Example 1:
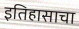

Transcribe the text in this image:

इतिहासाचा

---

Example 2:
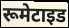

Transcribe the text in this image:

रूमेटाइड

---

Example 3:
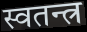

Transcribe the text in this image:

स्वतन्त्र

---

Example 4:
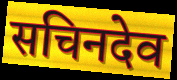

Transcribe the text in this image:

सचिनदेव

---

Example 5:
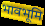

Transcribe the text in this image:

भावभूमि